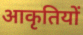
आकृतियों